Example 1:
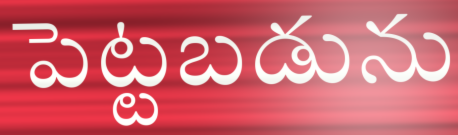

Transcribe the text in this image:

పెట్టబడును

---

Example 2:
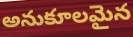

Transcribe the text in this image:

అనుకూలమైన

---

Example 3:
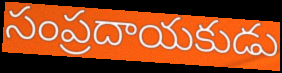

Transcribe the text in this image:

సంప్రదాయకుడు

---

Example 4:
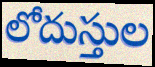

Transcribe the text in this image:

లోదుస్తుల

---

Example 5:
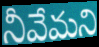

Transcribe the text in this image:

నీవేమని